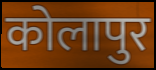
कोलापुर